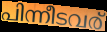
പിന്നീടവര്